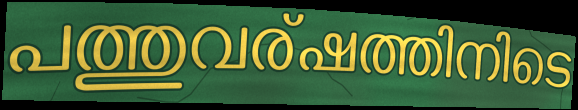
പത്തുവര്ഷത്തിനിടെ